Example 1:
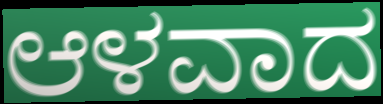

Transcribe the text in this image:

ಆಳವಾದ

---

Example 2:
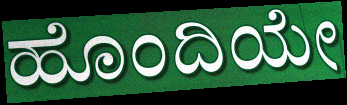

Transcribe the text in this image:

ಹೊಂದಿಯೇ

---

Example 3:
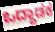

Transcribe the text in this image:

ಒದ್ದಾಡಕ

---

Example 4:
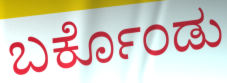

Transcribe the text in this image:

ಬರ್ಕೊಂಡು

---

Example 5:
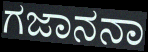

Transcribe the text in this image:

ಗಜಾನನಾ